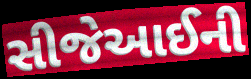
સીજેઆઈની